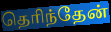
தெரிந்தேன்